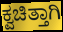
ಕ್ವಚಿತ್ತಾಗಿ